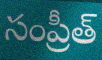
సంప్రీత్